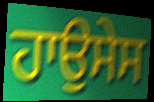
ਹਾਉਸੇਸ